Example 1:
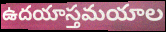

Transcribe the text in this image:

ఉదయాస్తమయాల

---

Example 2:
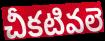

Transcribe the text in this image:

చీకటివలె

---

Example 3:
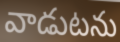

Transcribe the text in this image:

వాడుటను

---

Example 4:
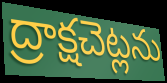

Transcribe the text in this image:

ద్రాక్షచెట్లను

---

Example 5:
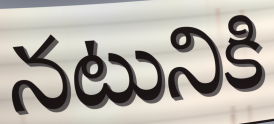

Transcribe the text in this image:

నటునికి